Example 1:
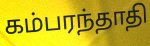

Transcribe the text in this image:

கம்பரந்தாதி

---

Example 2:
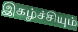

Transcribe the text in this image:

இகழ்ச்சியும்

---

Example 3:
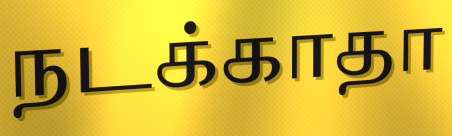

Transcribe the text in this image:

நடக்காதா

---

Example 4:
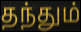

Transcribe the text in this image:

தந்தும்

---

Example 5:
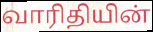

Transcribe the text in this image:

வாரிதியின்